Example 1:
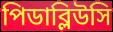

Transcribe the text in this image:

পিডাব্লিউসি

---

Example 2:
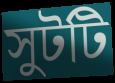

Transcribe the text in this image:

সুটটি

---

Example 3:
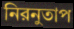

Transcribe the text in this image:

নিরনুতাপ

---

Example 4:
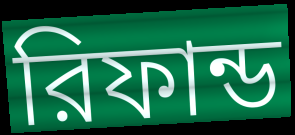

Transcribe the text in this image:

রিফান্ড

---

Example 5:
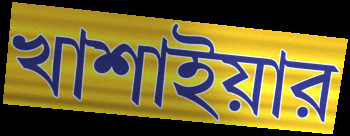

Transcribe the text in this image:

খাশাইয়ার